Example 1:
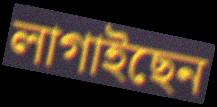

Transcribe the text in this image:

লাগাইছেন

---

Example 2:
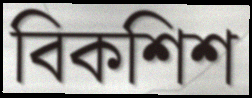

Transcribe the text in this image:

বিকশিশ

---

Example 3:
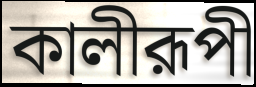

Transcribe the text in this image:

কালীরূপী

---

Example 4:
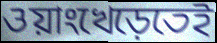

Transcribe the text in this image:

ওয়াংখেড়েতেই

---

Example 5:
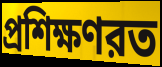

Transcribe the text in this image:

প্রশিক্ষণরত